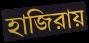
হাজিরায়